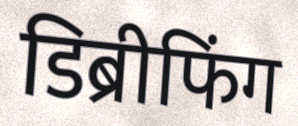
डिब्रीफिंग